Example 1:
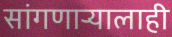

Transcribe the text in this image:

सांगणाऱ्यालाही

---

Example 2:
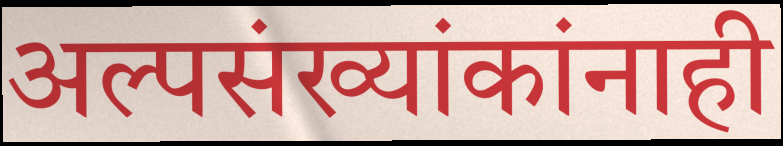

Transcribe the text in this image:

अल्पसंख्यांकांनाही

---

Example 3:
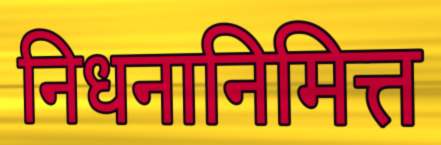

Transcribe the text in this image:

निधनानिमित्त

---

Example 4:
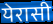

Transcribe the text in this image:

येरासी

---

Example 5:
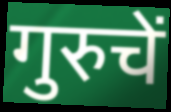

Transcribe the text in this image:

गुरुचें